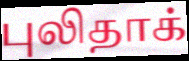
புலிதாக்